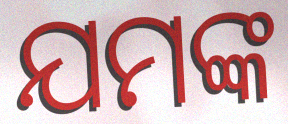
ଯମଙ୍କ